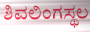
ಶಿವಲಿಂಗಸ್ಥಲ